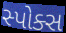
સ્પોક્સ